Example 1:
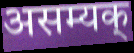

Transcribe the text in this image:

असम्यक्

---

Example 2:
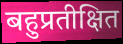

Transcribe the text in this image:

बहुप्रतीक्षित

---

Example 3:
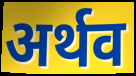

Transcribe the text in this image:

अर्थव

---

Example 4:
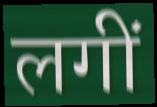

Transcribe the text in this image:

लगीं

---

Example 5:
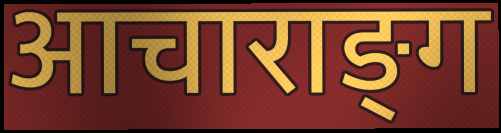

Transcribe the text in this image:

आचाराङ्ग